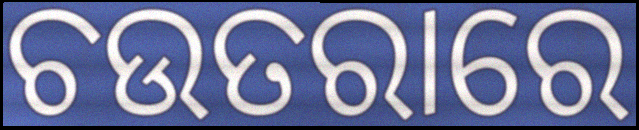
ଚଉତରାରେ